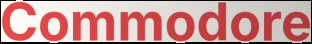
Commodore